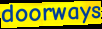
doorways